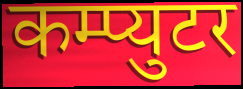
कम्प्युटर